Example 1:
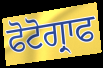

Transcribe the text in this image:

ਫੋਟੋਗ੍ਰਾਫ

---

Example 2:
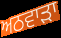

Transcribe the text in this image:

ਅਠਵਾੜਾ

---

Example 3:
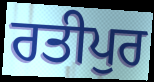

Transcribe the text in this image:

ਰਤੀਪੁਰ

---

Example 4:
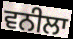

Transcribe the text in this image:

ਵਨੀਲਾ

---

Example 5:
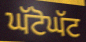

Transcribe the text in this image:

ਘੱਟੋਘੱਟ